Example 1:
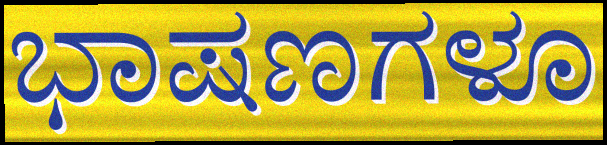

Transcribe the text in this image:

ಭಾಷಣಗಳೂ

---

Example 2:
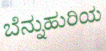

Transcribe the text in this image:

ಬೆನ್ನುಹುರಿಯ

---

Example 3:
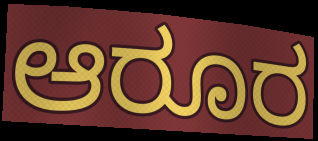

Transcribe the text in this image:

ಆರೂರ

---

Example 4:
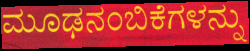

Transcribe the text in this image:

ಮೂಢನಂಬಿಕೆಗಳನ್ನು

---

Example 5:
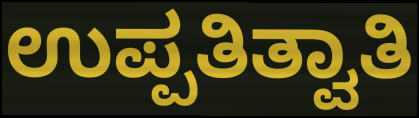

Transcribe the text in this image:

ಉಪ್ಪತಿತ್ವಾತಿ